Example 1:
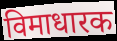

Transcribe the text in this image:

विमाधारक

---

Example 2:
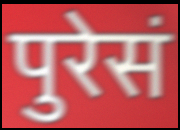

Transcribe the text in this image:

पुरेसं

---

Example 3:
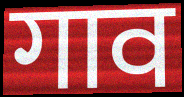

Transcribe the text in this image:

गाव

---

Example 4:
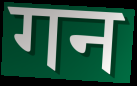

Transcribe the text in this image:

गन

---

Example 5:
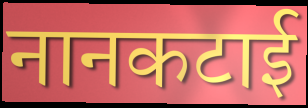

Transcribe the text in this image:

नानकटाई